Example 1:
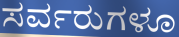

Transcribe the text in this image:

ಸರ್ವರುಗಳೂ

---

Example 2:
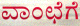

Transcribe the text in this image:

ವಾಂಛೆಗೆ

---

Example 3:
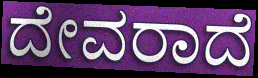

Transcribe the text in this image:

ದೇವರಾದೆ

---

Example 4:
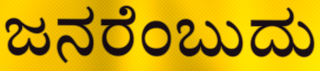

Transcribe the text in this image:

ಜನರೆಂಬುದು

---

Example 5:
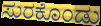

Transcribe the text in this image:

ಸುರಕೊಂಡು